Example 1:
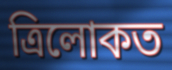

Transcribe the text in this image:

ত্ৰিলোকত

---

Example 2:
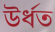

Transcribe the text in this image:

উৰ্ধত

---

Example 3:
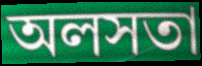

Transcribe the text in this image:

অলসতা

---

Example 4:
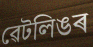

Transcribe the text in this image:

ৱেটলিঙৰ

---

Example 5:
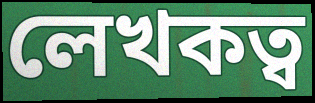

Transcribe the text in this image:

লেখকত্ব